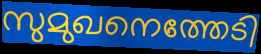
സുമുഖനെത്തേടി